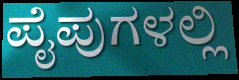
ಪೈಪುಗಳಲ್ಲಿ